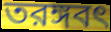
তরঙ্গবৎ